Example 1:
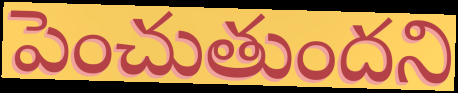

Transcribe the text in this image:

పెంచుతుందని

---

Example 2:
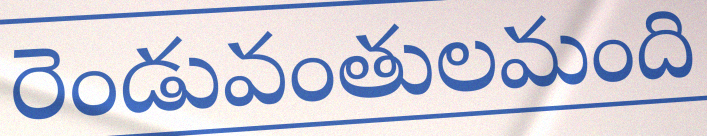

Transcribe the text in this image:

రెండువంతులమంది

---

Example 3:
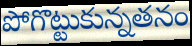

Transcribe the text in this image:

పోగొట్టుకున్నతనం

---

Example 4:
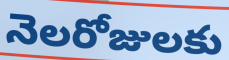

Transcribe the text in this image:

నెలరోజులకు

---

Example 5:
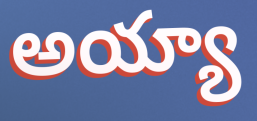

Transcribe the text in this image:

అయ్యా